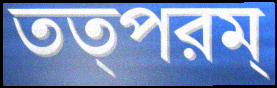
তত্পরম্